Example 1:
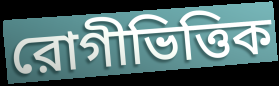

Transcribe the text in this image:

রোগীভিত্তিক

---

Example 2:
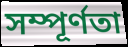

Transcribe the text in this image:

সম্পূর্ণতা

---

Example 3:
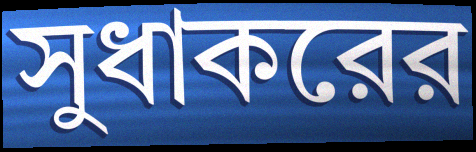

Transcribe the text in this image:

সুধাকরের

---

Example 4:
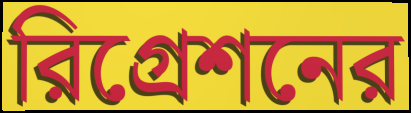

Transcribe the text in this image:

রিগ্রেশনের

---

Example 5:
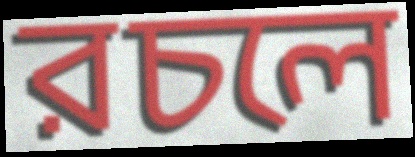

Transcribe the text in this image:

রচলে